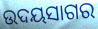
ଉଦୟସାଗର